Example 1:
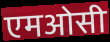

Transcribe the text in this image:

एमओसी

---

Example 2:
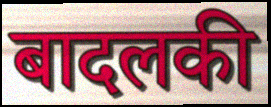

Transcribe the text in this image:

बादलकी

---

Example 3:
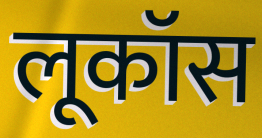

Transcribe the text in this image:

लूकॉस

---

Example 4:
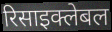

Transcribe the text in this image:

रिसाइक्लेबल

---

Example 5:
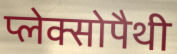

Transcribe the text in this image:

प्लेक्सोपैथी